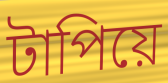
টাপিয়ে